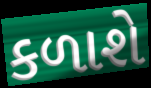
કળાશે